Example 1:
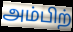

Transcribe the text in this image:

அம்பிற்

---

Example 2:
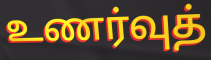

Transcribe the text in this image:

உணர்வுத்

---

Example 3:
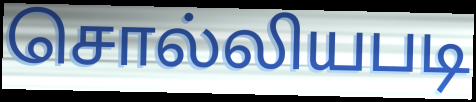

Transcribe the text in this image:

சொல்லியபடி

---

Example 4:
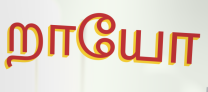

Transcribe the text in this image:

றாயோ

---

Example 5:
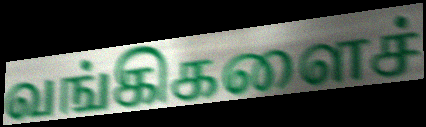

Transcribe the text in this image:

வங்கிகளைச்